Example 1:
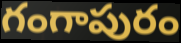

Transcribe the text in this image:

గంగాపురం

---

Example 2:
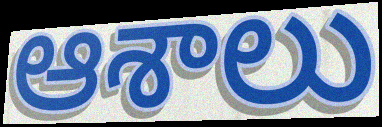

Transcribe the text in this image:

ఆశాలు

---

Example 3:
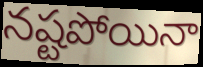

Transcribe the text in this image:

నష్టపోయినా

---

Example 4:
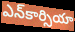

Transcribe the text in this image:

ఎన్‌కార్సియా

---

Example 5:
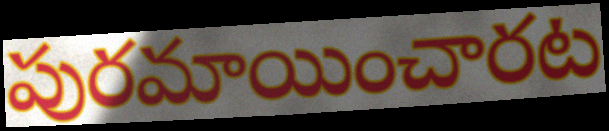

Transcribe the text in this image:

పురమాయించారట